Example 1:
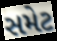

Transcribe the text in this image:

સમેટ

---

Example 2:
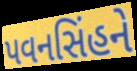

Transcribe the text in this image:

પવનસિંહને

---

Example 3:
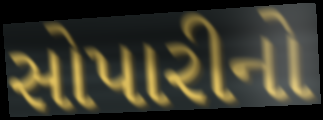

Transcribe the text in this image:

સોપારીનો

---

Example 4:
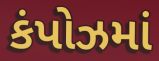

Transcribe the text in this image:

કંપોઝમાં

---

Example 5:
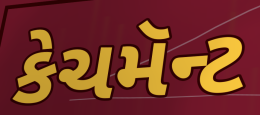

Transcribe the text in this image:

કેચમૅન્ટ